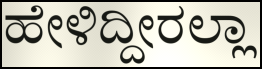
ಹೇಳಿದ್ದೀರಲ್ಲಾ